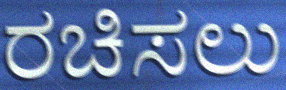
ರಚಿಸಲು